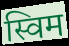
स्विम